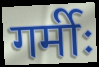
गर्मीः